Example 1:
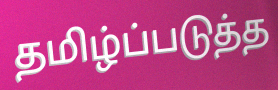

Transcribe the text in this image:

தமிழ்ப்படுத்த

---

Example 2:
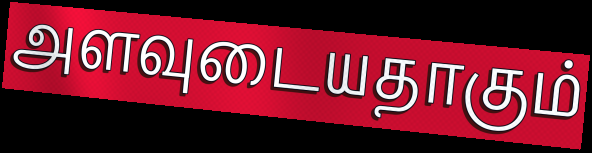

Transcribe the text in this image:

அளவுடையதாகும்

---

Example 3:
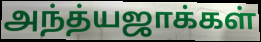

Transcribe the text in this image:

அந்த்யஜாக்கள்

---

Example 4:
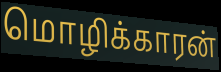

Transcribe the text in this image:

மொழிக்காரன்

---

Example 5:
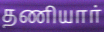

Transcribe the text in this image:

தணியார்